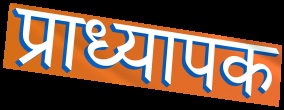
प्राध्यापक